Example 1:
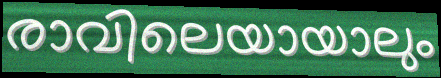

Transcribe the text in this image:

രാവിലെയായാലും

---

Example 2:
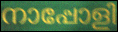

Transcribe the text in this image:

നാപ്പോളി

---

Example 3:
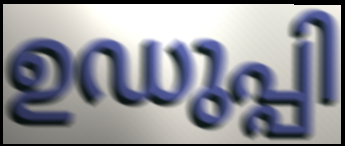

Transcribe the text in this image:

ഉഡുപ്പി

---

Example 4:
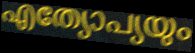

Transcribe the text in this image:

എത്യോപ്യയും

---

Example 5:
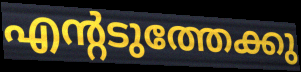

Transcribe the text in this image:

എന്റടുത്തേക്കു